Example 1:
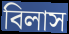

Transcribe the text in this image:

বিলাস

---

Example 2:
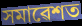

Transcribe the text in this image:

সমাৱেশত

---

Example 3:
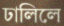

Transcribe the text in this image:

ঢালিলে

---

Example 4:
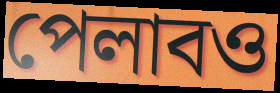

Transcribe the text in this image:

পেলাবও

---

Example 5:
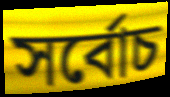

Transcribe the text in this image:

সৰ্বোচ